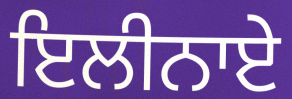
ਇਲੀਨਾਏ